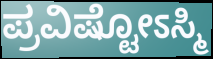
ಪ್ರವಿಷ್ಟೋಽಸ್ಮಿ